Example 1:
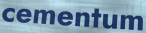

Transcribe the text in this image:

cementum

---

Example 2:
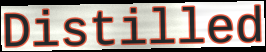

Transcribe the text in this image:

Distilled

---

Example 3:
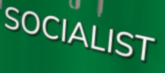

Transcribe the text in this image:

SOCIALIST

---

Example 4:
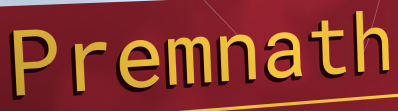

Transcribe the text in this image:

Premnath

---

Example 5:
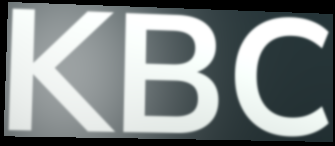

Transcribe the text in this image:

KBC